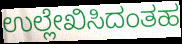
ಉಲ್ಲೇಖಿಸಿದಂತಹ